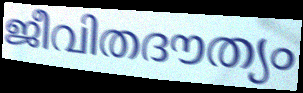
ജീവിതദൗത്യം